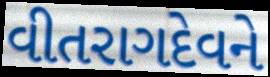
વીતરાગદેવને